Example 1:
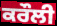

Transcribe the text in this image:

ਕਰੌਲੀ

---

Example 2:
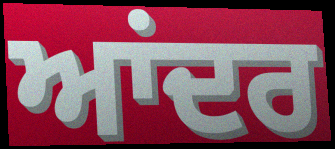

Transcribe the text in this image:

ਆਂਦਰ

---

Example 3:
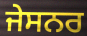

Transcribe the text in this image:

ਜੇਸਨਰ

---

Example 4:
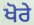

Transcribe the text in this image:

ਖੋਰੇ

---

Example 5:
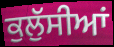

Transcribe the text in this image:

ਕੁਲੁੱਸੀਆਂ